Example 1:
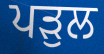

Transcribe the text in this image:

ਪੜੁਲ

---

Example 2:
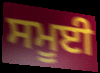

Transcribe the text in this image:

ਸਮੂਈ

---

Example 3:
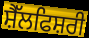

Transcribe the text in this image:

ਸ਼ੈੱਲਫਿਸ਼ਰੀ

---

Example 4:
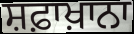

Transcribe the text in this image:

ਸ਼ਫ਼ਾਖ਼ਾਨਾ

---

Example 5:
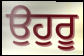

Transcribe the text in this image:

ਉਹੁਰੂ